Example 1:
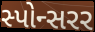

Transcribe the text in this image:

સ્પોન્સરર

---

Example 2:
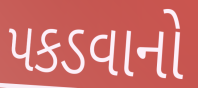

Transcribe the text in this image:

પકડવાનો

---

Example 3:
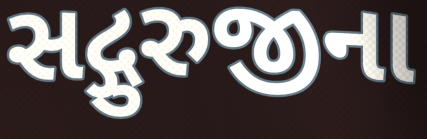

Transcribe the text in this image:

સદ્ગુરુજીના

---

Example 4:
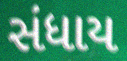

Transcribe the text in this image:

સંધાય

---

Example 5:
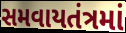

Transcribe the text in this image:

સમવાયતંત્રમાં